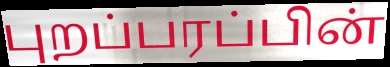
புறப்பரப்பின்